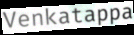
Venkatappa